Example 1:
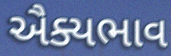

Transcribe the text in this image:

ઐક્યભાવ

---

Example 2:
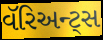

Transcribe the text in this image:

વૅરિઅન્ટ્સ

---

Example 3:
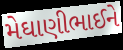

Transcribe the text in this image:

મેઘાણીભાઈને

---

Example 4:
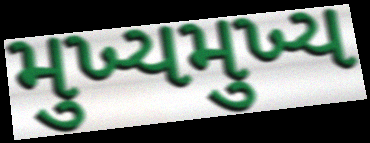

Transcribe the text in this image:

મુખ્યમુખ્ય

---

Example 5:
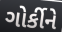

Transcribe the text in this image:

ગોર્કીને